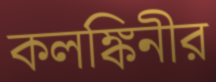
কলঙ্কিনীর